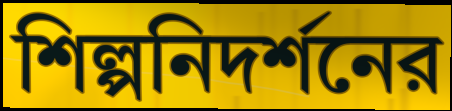
শিল্পনিদর্শনের